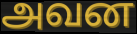
அவன